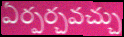
ఏర్పర్చవచ్చు